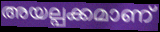
അയല്പക്കമാണ്